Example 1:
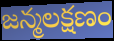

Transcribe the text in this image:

జన్మలక్షణం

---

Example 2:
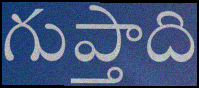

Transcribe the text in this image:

గుప్తాది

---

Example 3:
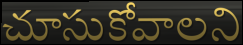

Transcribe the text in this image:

చూసుకోవాలని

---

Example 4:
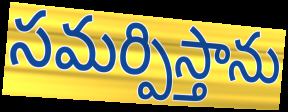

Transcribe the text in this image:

సమర్పిస్తాను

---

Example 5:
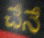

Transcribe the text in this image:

చేనే